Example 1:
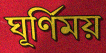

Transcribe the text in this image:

ঘূর্ণিময়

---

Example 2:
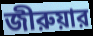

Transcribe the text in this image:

জীরুয়ার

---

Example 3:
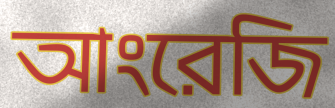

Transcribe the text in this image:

আংরেজি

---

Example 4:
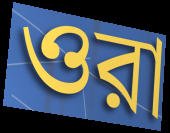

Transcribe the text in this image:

ওরা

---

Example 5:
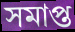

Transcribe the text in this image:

সমাপ্ত